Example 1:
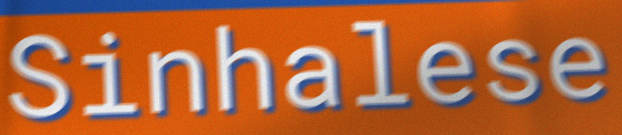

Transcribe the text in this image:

Sinhalese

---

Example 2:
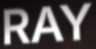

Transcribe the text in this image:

RAY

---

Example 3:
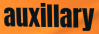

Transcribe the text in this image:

auxillary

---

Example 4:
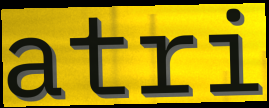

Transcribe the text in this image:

atri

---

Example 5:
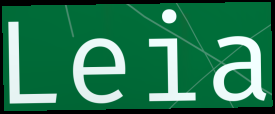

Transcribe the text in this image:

Leia